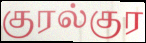
குரல்குர